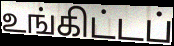
உங்கிட்டப்